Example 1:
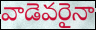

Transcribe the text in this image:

వాడెవరైనా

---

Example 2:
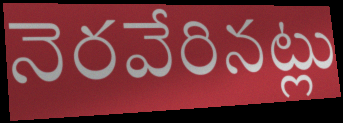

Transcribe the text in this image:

నెరవేరినట్లు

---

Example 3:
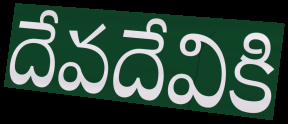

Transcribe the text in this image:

దేవదేవికి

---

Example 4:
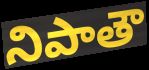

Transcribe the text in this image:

నిపాతౌ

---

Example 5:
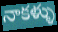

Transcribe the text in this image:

నాకళ్ళు